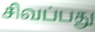
சிவப்பது